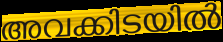
അവക്കിടയിൽ